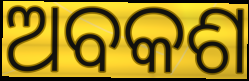
ଅବକଶ